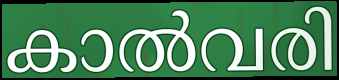
കാൽവരി